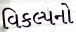
વિકલ્પનો